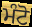
ਮੰਟੋ